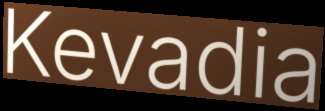
Kevadia